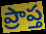
ప్రాప్త